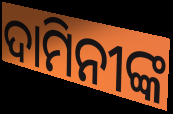
ଦାମିନୀଙ୍କ